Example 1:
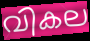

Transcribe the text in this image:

വികല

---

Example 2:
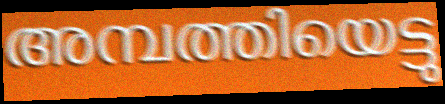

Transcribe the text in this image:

അമ്പത്തിയെട്ടു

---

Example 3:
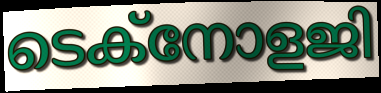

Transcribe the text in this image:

ടെക്നോളജി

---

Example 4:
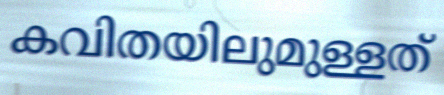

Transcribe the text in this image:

കവിതയിലുമുള്ളത്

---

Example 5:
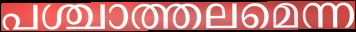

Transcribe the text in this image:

പശ്ചാത്തലമെന്ന